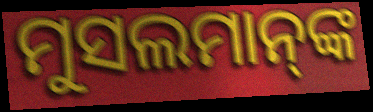
ମୁସଲମାନ୍‍ଙ୍କ